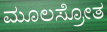
ಮೂಲಸ್ರೋತ